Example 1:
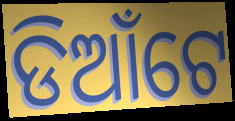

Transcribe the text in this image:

ଡିଆଁଟେ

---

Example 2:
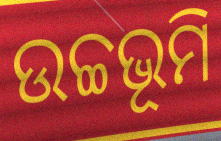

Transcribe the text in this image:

ଉଚ୍ଚଭୂମି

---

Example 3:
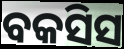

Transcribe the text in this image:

ବକସିସ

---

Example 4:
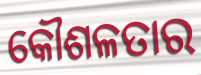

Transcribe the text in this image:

କୌଶଳତାର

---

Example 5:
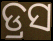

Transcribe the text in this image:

ଡ୍ରସ